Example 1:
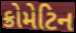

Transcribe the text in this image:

ક્રોમેટિન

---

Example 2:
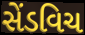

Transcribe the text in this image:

સેંડવિચ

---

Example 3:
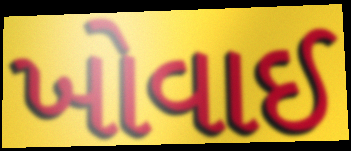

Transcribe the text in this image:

ખોવાઈ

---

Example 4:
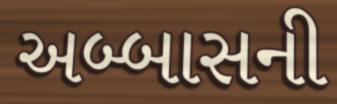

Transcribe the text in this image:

અબ્બાસની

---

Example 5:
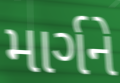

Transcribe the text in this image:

માર્ગને